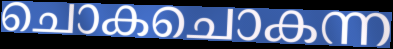
ചൊകചൊകന്ന